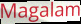
Magalam